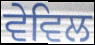
ਵੇਵਿਲ